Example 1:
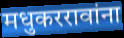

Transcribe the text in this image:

मधुकररावांना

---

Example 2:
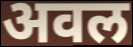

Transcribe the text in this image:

अवल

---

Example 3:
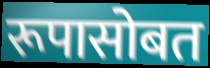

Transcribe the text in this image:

रूपासोबत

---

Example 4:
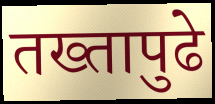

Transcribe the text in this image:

तख्तापुढे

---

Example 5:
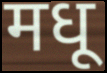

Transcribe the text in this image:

मधू